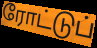
ரோட்டுப்